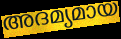
അദമ്യമായ